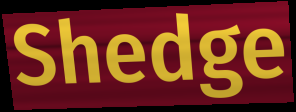
Shedge